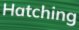
Hatching